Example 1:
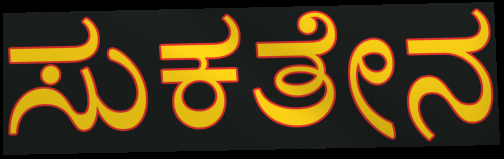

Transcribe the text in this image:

ಸುಕತೇನ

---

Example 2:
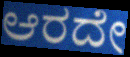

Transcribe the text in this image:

ಆರದೇ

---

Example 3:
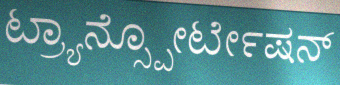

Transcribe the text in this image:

ಟ್ರ್ಯಾನ್ಸ್ಪೋರ್ಟೇಷನ್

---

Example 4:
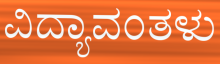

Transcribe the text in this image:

ವಿದ್ಯಾವಂತಳು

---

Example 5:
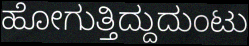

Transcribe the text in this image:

ಹೋಗುತ್ತಿದ್ದುದುಂಟು